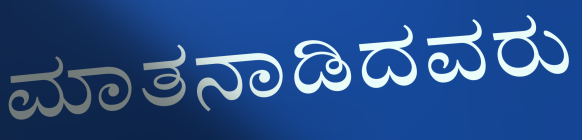
ಮಾತನಾಡಿದವರು